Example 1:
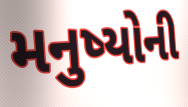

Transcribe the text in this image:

મનુષ્યોની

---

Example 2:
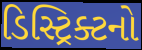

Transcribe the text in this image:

ડિસ્ટ્રિક્ટનો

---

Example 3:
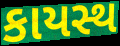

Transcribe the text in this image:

કાયસ્થ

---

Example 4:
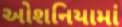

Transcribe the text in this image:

ઓશનિયામાં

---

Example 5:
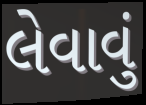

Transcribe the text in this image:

લેવાવું